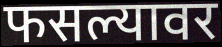
फसल्यावर